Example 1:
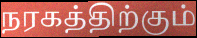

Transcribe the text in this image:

நரகத்திற்கும்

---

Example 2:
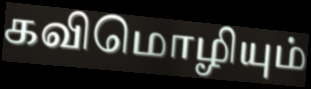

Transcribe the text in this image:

கவிமொழியும்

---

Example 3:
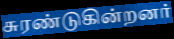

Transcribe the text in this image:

சுரண்டுகின்றனர்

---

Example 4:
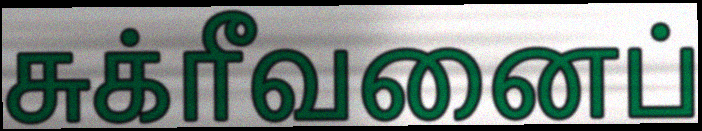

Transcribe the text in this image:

சுக்ரீவனைப்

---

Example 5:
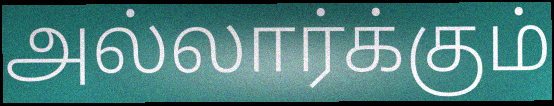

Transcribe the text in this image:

அல்லார்க்கும்